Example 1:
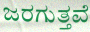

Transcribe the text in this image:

ಜರಗುತ್ತವೆ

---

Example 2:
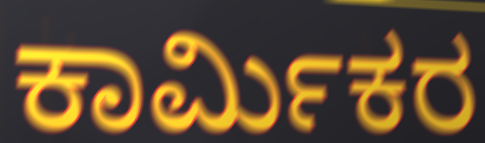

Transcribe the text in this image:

ಕಾರ್ಮಿಕರ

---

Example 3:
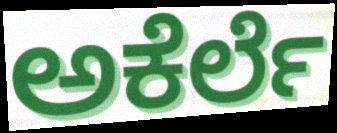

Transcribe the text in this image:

ಅಕೆರ್ಲೆ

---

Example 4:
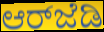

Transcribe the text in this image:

ಆರ್‌ಜೆಡಿ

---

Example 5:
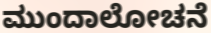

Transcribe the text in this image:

ಮುಂದಾಲೋಚನೆ